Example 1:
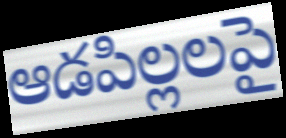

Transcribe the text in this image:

ఆడపిల్లలపై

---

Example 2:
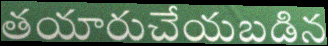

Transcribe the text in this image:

తయారుచేయబడిన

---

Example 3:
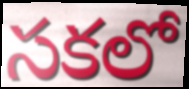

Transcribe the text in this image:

సకలో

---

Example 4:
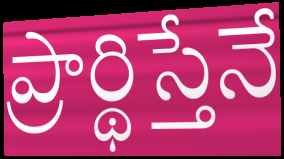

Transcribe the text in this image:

ప్రార్థిస్తేనే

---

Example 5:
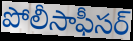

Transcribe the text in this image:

పోలీసాఫీసర్